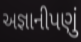
અજ્ઞાનીપણું